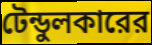
টেন্ডুলকারের